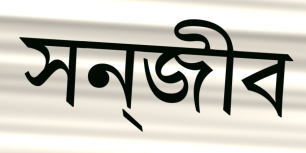
সন্জীব